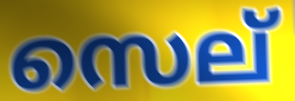
സെല്